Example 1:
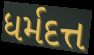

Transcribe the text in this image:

ધર્મદત્ત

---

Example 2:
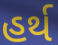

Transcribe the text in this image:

હર્થ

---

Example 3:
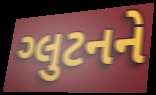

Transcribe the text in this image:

ગ્લુટનને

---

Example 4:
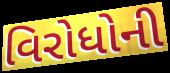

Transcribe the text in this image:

વિરોધોની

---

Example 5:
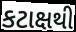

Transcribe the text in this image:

કટાક્ષથી